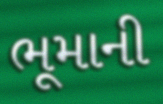
ભૂમાની